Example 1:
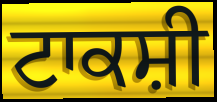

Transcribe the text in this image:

ਟਾਕਸ਼ੀ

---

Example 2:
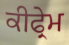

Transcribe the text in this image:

ਕੀਫ੍ਰੇਮ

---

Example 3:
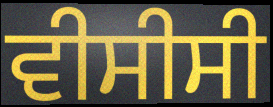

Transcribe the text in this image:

ਵੀਸੀਸੀ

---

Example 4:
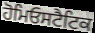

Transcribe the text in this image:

ਹੋਮਿਓਸਟੈਟਿਕ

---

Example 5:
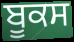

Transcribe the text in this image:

ਬੂਕਸ